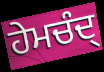
ਹੇਮਚੰਦ੍